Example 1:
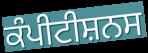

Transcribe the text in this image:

ਕੰਪੀਟੀਸ਼ਨਸ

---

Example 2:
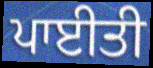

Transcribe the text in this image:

ਪਾਈਤੀ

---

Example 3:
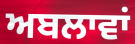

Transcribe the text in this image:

ਅਬਲਾਵਾਂ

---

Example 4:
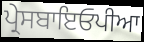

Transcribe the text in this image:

ਪ੍ਰੇਸਬਾਇਓਪੀਆ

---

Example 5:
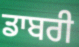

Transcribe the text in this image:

ਡਾਬਰੀ